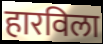
हारविला